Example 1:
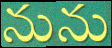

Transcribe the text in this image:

నును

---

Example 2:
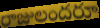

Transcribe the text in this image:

రాజులందరూ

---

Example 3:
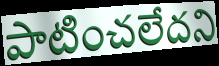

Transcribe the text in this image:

పాటించలేదని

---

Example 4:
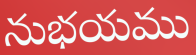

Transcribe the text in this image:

నుభయము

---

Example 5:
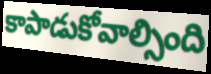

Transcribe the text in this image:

కాపాడుకోవాల్సింది